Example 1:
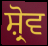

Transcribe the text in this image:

ਸ਼੍ਰੋਵ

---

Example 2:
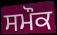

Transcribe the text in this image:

ਸਮੌਕ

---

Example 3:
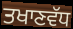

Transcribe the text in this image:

ਤਖਾਣਵੱਧ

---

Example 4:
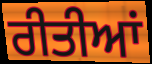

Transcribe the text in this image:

ਰੀਤੀਆਂ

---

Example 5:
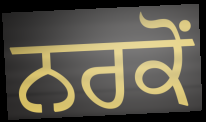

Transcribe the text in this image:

ਨਰਕੋਂ